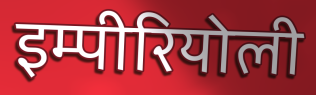
इम्पीरियोली